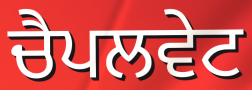
ਚੈਪਲਵੇਟ